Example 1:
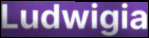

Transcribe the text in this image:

Ludwigia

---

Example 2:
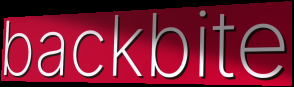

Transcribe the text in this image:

backbite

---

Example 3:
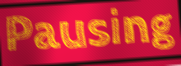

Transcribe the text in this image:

Pausing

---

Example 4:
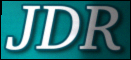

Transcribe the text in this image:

JDR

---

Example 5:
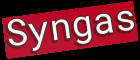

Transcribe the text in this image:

Syngas